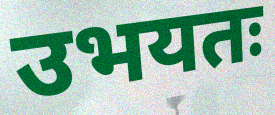
उभयतः